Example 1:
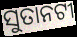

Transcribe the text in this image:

ସୁତାନଟୀ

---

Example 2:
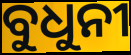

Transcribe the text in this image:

ବୁଧୁନୀ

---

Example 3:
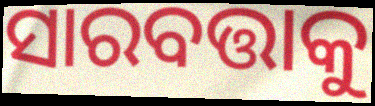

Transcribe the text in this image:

ସାରବତ୍ତାକୁ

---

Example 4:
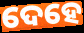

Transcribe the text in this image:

ଦେହେ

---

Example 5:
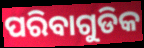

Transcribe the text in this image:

ପରିବାଗୁଡିକ